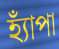
হ্যাঁপা